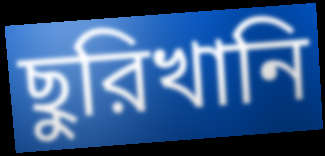
ছুরিখানি